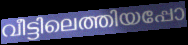
വീട്ടിലെത്തിയപ്പോ